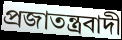
প্রজাতন্ত্রবাদী